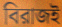
বিরাজই